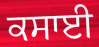
ਕਸਾਈ